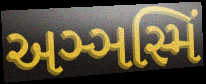
અઞ્ઞસ્મિં